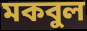
মকবুল